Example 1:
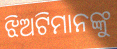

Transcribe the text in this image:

ଝିଅଟିମାନଙ୍କୁ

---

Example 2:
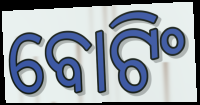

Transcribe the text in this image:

ବୋଟିଂ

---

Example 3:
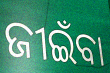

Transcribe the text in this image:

ଜୀଇଁବା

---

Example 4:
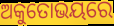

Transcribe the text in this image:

ଅକୁତୋଭୟରେ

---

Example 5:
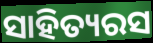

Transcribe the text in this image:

ସାହିତ୍ୟରସ